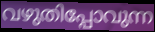
വഴുതിപ്പോവുന്ന